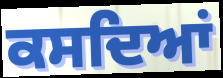
ਕਸਦਿਆਂ